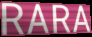
RARA